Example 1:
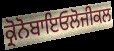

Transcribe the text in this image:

ਕ੍ਰੋਨੋਬਾਇਓਲੋਜੀਕਲ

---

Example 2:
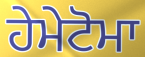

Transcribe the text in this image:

ਹੇਮੇਟੋਮਾ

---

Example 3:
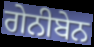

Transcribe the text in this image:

ਗੇਨੀਬੇਨ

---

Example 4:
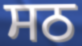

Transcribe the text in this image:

ਸਠ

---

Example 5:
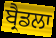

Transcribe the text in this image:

ਬ੍ਰੈਡਲਾ